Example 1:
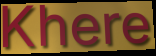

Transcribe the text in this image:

Khere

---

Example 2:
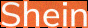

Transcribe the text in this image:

Shein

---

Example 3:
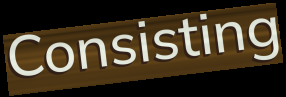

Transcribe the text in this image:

Consisting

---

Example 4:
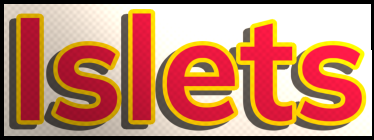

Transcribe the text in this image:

Islets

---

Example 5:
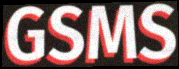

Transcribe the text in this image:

GSMS